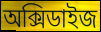
অক্সিডাইজ